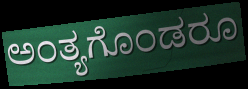
ಅಂತ್ಯಗೊಂಡರೂ